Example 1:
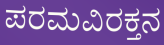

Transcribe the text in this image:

ಪರಮವಿರಕ್ತನ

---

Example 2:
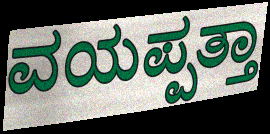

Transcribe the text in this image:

ವಯಪ್ಪತ್ತಾ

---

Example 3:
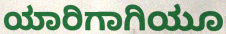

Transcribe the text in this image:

ಯಾರಿಗಾಗಿಯೂ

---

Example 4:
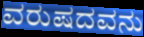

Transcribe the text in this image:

ವರುಷದವನು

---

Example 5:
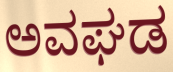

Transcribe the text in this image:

ಅವಘಡ